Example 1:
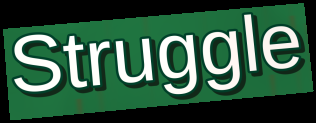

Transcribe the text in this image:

Struggle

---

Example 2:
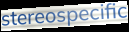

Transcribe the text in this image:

stereospecific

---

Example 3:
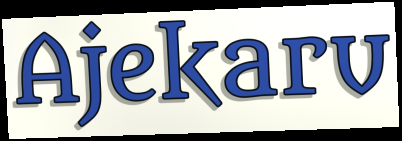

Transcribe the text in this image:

Ajekaru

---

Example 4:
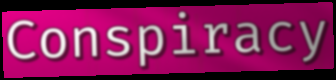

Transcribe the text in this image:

Conspiracy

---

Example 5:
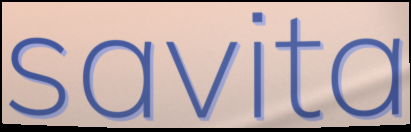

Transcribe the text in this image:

savita